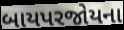
બાયપરજોયના